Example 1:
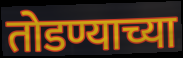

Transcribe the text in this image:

तोडण्याच्या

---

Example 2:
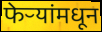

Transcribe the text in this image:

फेऱ्यांमधून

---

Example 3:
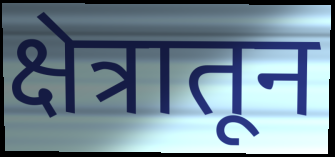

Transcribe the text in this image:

क्षेत्रातून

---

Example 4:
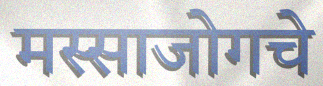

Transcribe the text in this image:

मस्साजोगचे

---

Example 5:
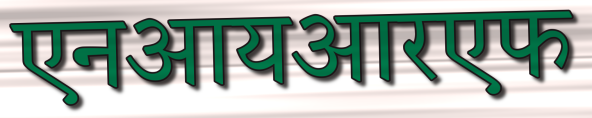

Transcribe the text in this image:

एनआयआरएफ